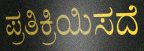
ಪ್ರತಿಕ್ರಿಯಿಸದೆ